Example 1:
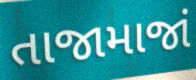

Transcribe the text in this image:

તાજામાજાં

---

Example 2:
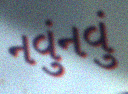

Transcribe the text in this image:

નવુંનવું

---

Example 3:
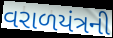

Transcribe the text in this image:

વરાળયંત્રની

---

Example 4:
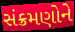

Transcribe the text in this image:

સંક્રમણોને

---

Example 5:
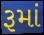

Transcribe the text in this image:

રૂમાં